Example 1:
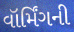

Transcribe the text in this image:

વૉર્મિંગની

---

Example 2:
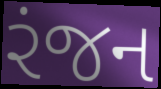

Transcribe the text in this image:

રંજન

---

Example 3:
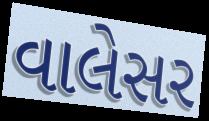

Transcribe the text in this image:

વાલેસર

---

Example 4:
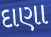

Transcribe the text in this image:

દાણા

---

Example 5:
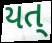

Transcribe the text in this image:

યત્